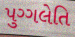
પુગ્ગલેતિ